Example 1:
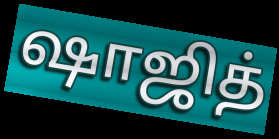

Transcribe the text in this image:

ஷாஜித்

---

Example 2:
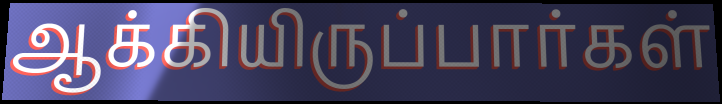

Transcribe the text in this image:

ஆக்கியிருப்பார்கள்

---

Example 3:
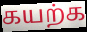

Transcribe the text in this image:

கயற்க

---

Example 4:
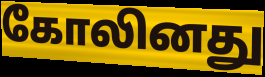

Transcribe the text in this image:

கோலினது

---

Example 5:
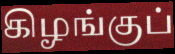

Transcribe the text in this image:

கிழங்குப்